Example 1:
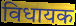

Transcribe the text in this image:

विधायक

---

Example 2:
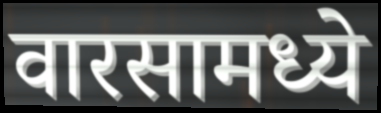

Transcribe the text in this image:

वारसामध्ये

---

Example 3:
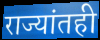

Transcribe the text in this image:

राज्यांतही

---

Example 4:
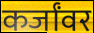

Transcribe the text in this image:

कर्जांवर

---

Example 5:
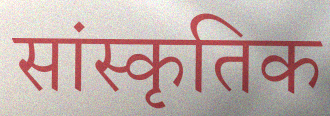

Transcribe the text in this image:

सांस्कृतिक